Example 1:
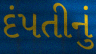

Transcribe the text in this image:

દંપતીનું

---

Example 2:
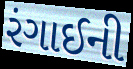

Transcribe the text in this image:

રંગાઈની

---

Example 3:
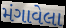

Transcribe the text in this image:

મંગાવેલા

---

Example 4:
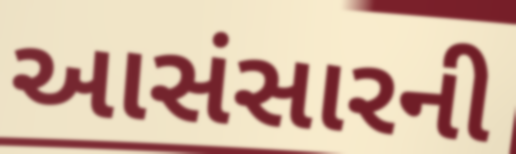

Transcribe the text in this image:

આસંસારની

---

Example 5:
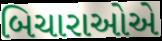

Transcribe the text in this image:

બિચારાઓએ